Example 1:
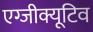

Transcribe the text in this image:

एग्जीक्यूटिव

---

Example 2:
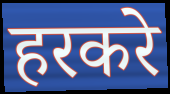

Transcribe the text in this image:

हरकरे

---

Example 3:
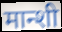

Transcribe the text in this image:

मान्शी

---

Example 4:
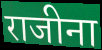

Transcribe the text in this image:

राजीना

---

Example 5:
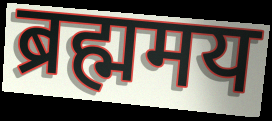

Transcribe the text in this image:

ब्रह्ममय